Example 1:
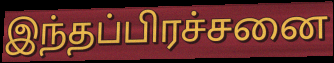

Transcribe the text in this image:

இந்தப்பிரச்சனை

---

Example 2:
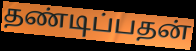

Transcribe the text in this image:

தண்டிப்பதன்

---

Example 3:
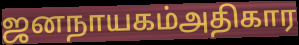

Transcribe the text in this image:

ஜனநாயகம்அதிகார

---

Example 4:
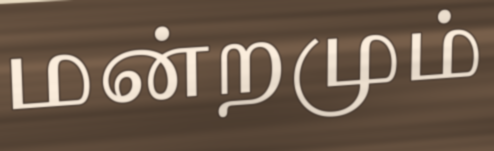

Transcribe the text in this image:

மன்றமும்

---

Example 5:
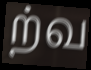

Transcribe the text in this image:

ற்வ